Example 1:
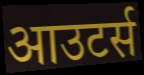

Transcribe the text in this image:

आउटर्स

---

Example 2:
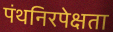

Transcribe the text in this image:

पंथनिरपेक्षता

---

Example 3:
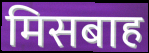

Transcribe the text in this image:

मिसबाह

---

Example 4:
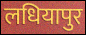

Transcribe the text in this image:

लधियापुर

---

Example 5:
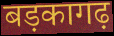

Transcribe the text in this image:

बड़कागढ़